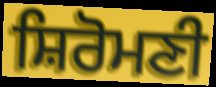
ਸ਼ਿਰੋਮਣੀ